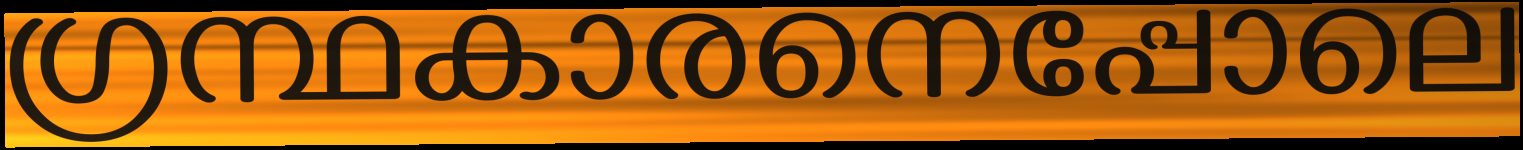
ഗ്രന്ഥകാരനെപ്പോലെ